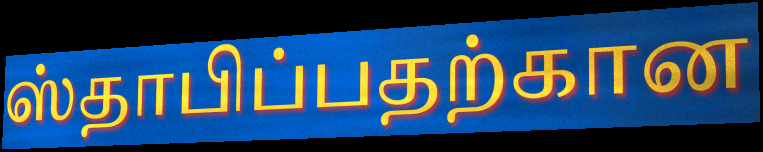
ஸ்தாபிப்பதற்கான